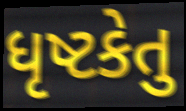
ધૃષ્ટકેતુ